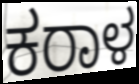
ಕರಾಳ